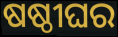
ଷଷ୍ଠୀଘର